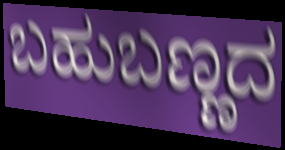
ಬಹುಬಣ್ಣದ